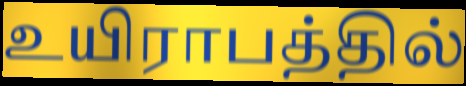
உயிராபத்தில்